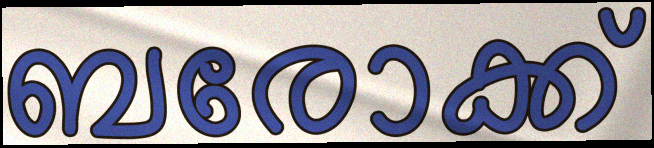
ബരോക്ക്